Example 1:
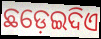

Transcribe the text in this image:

ଛଡ଼େଇଦିଏ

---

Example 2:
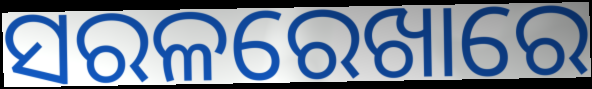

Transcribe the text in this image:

ସରଳରେଖାରେ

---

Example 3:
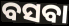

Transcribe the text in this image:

ବସବା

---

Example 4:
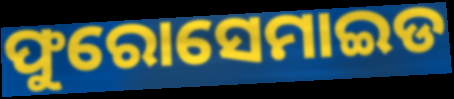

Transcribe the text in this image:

ଫୁରୋସେମାଇଡ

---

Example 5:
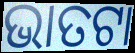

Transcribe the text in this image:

ଭାତଟା